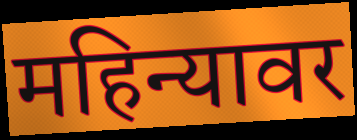
महिन्यावर